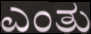
ಎಂತು